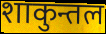
शाकुन्तल